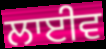
ਲਾਈਵ